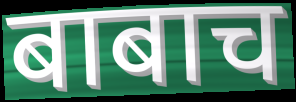
बाबाच